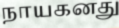
நாயகனது